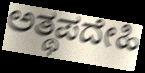
ಅತ್ಥಪದೇಹಿ